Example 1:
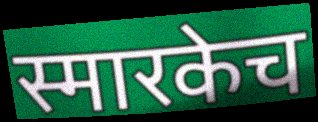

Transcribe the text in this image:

स्मारकेच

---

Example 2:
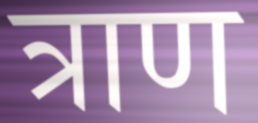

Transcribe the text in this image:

त्राण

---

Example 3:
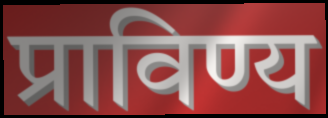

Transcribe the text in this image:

प्राविण्य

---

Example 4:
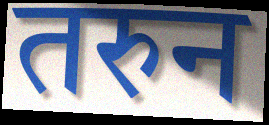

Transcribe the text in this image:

तरुन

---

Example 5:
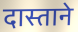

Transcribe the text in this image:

दास्ताने